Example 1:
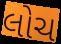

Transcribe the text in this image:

લોચ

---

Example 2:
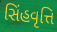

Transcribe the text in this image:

સિંહવૃત્તિ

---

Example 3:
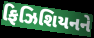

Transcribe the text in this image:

ફિઝિશિયનને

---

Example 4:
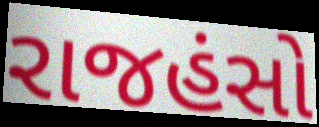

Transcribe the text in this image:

રાજહંસો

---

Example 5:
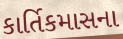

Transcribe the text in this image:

કાર્તિકમાસના